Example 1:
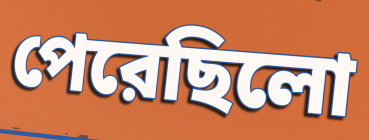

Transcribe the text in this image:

পেরেছিলো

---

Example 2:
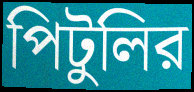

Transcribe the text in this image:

পিটুলির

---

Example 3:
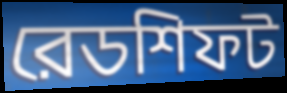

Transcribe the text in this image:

রেডশিফট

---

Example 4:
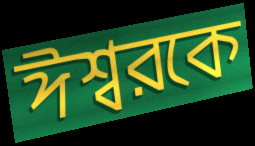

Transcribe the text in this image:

ঈশ্বরকে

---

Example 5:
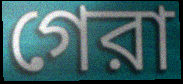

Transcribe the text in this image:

গেরা